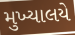
મુખ્યાલયે